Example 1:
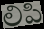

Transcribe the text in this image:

లిపి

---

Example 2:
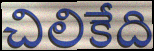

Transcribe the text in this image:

చిలికేది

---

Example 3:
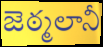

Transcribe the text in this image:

జెఠ్మలానీ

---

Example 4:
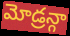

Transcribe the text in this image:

మోడ్రన్గా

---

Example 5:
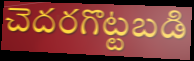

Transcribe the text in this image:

చెదరగొట్టబడి